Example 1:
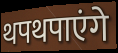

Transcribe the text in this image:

थपथपाएंगे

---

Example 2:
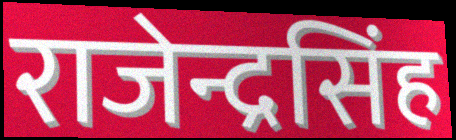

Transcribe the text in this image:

राजेन्द्रसिंह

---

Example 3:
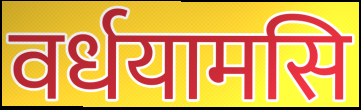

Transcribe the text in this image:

वर्धयामसि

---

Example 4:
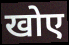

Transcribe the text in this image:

खोए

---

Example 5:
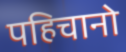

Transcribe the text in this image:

पहिचानो